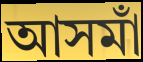
আসমাঁ